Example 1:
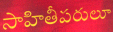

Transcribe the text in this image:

సాహితీపరులూ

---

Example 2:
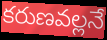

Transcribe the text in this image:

కరుణవల్లనే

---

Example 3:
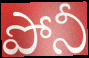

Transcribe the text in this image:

పోనీ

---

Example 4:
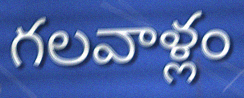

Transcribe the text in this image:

గలవాళ్లం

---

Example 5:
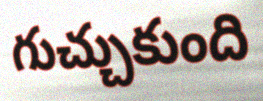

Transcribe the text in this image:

గుచ్చుకుంది